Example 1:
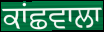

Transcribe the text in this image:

ਕਾਂਛਵਾਲਾ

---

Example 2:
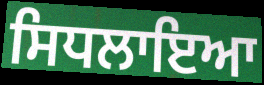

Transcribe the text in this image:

ਸਿਧਲਾਇਆ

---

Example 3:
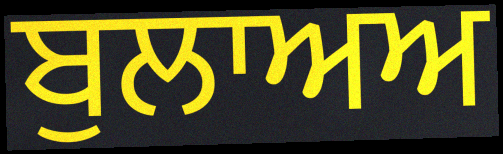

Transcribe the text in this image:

ਬੁਲਾਅਅ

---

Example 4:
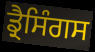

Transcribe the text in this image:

ਡ੍ਰੈਸਿੰਗਸ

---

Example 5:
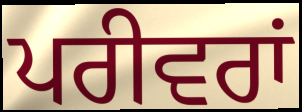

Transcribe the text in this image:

ਪਰੀਵਰਾਂ